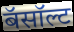
बॅसॉल्ट